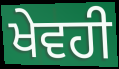
ਖੇਵਹੀ